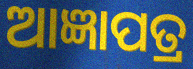
ଆଜ୍ଞାପତ୍ର